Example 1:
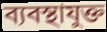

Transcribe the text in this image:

ব্যবস্থাযুক্ত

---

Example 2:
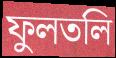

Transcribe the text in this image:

ফুলতলি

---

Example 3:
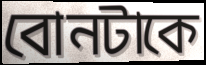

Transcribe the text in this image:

বোনটাকে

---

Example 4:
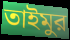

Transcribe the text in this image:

তাইমুর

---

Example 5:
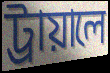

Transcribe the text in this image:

ট্রায়ালে